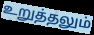
உறுத்தலும்